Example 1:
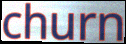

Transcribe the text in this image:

churn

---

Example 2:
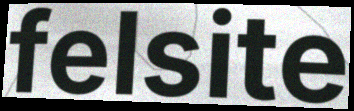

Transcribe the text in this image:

felsite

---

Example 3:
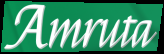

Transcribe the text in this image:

Amruta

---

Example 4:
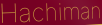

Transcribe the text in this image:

Hachiman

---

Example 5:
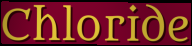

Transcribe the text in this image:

Chloride